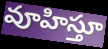
వూహిస్తూ